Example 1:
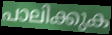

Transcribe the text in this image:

പാലിക്കുക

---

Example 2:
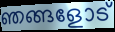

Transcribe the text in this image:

ഞങ്ങളോട്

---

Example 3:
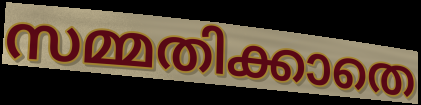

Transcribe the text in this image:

സമ്മതിക്കാതെ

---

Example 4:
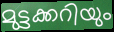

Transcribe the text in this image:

മുട്ടക്കറിയും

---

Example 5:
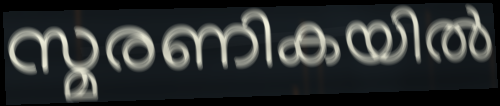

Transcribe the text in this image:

സ്മരണികയിൽ